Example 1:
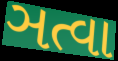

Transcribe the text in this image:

ઞત્વા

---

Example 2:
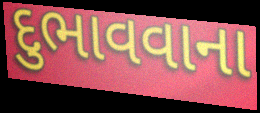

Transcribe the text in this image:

દુભાવવાના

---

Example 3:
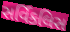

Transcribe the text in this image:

સર્વિકલિસ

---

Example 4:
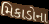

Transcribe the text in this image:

મિકાડોના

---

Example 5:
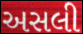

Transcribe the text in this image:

અસલી